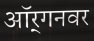
ऑर्गनवर